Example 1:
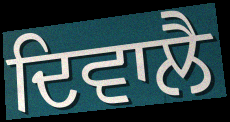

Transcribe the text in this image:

ਦਿਵਾਲੈ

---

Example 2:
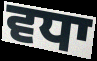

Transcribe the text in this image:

ਵਧਾ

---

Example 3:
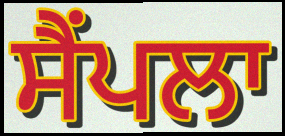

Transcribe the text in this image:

ਸੈਂਪਲਾ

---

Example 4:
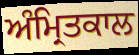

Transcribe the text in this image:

ਅੰਮ੍ਰਿਤਕਾਲ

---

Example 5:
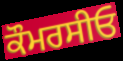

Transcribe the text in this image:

ਕੌਮਰਸੀਓ